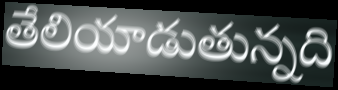
తేలియాడుతున్నది